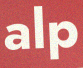
alp